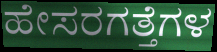
ಹೇಸರಗತ್ತೆಗಳ